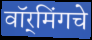
वॉर्मिंगचे